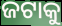
ଜଟାକୁ